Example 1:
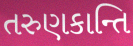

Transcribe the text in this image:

તરુણકાન્તિ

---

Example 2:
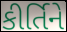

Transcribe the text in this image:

કીર્તિને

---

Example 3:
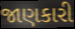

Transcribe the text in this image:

જાણકારી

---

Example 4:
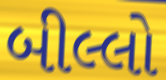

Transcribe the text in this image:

બીલ્લો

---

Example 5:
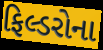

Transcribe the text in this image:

ફિલ્ડરોના